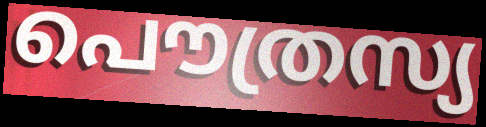
പൌത്രസ്യ